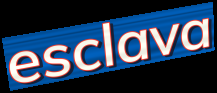
esclava